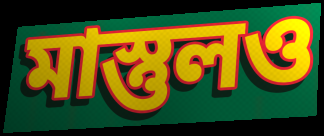
মাস্তুলও